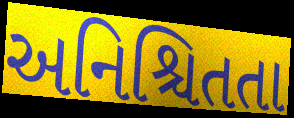
અનિશ્ચિતતા